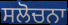
ਸਲੋਚਨਾ